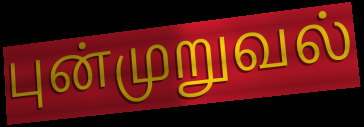
புன்முறுவல்